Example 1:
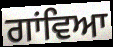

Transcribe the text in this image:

ਗਾਂਵਿਆ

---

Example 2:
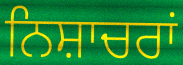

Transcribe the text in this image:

ਨਿਸ਼ਾਚਰਾਂ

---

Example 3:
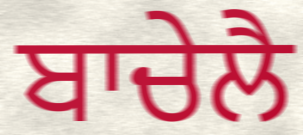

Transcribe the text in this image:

ਬਾਚੇਲੈ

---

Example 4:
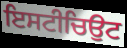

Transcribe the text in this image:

ਇਸਟੀਚਿਉਟ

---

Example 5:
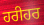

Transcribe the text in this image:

ਹਰੀਹਰ